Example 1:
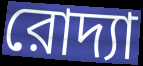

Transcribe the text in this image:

রোদ্যা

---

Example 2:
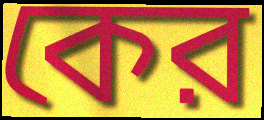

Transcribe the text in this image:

কের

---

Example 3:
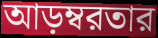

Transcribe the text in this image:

আড়ম্বরতার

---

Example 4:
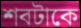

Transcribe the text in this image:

শবটাকে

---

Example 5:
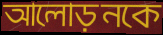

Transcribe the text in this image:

আলোড়নকে